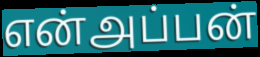
என்அப்பன்